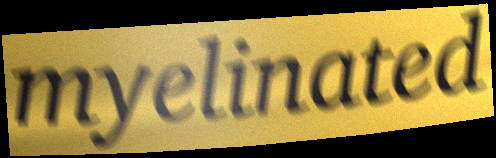
myelinated